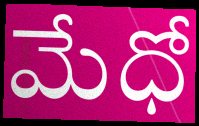
మేధో